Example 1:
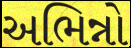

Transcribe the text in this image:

અભિન્નો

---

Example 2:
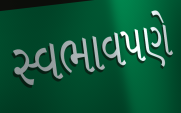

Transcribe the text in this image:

સ્વભાવપણે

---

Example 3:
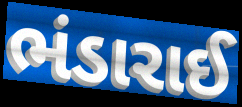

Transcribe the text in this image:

ભંડારાઈ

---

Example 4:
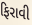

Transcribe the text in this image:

ફિરાવી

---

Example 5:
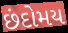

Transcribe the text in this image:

છંદોમય